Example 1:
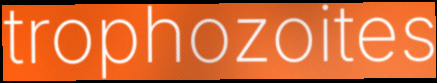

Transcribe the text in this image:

trophozoites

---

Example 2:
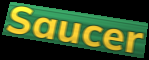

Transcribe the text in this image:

Saucer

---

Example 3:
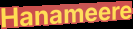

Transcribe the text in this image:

Hanameere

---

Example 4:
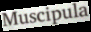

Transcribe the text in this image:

Muscipula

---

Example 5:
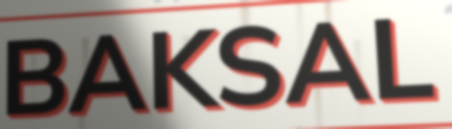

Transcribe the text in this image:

BAKSAL